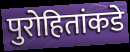
पुरोहितांकडे